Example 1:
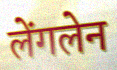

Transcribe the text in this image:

लेंगलेन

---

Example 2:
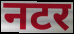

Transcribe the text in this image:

नटर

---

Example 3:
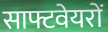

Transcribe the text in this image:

साफ्टवेयरों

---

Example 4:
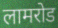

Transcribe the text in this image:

लामरोड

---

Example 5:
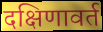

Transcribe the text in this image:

दक्षिणावर्त